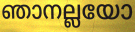
ഞാനല്ലയോ